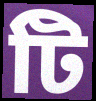
টি